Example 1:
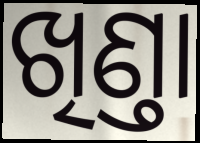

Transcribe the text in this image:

ଖିଣ୍ତା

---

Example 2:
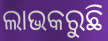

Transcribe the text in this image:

ଲାଭକରୁଛି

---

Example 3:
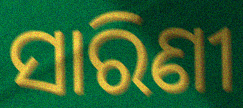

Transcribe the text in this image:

ସାରିଣୀ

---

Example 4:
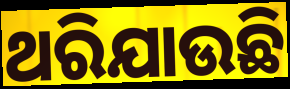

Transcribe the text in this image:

ଥରିଯାଉଛି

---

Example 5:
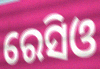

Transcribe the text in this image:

ରେସିଓ